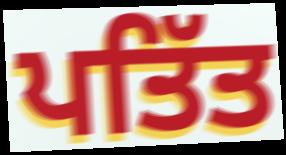
ਪਤਿੱਤ